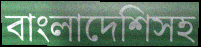
বাংলাদেশিসহ